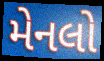
મેનલો